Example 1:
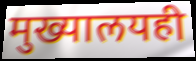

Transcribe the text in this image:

मुख्यालयही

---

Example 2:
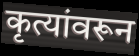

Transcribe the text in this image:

कृत्यांवरून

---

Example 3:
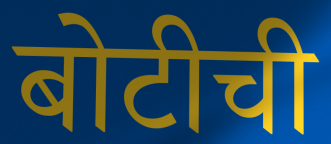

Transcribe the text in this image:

बोटीची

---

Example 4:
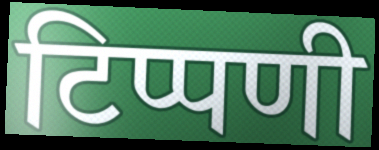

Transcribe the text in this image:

टिप्पणी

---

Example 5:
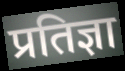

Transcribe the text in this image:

प्रतिज्ञा